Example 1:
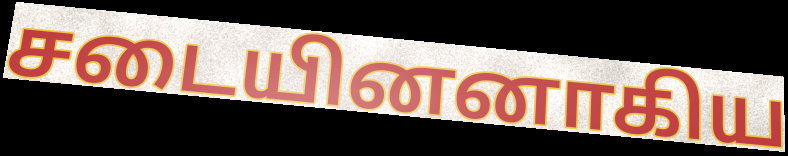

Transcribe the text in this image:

சடையினனாகிய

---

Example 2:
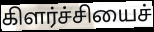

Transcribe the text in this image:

கிளர்ச்சியைச்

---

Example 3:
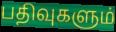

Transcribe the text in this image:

பதிவுகளும்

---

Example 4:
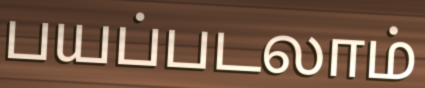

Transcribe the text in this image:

பயப்படலாம்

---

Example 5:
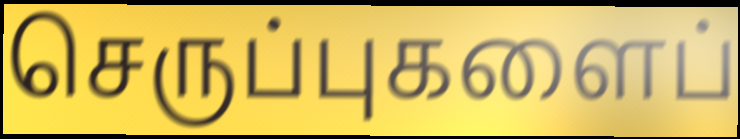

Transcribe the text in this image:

செருப்புகளைப்